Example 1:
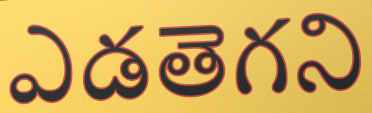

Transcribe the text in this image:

ఎడతెగని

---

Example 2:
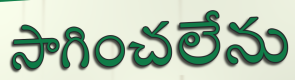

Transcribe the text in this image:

సాగించలేను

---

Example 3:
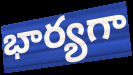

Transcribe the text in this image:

భార్యగా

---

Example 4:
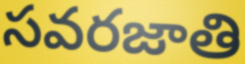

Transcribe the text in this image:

సవరజాతి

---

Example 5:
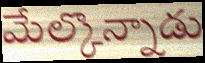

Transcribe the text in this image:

మేల్కొన్నాడు